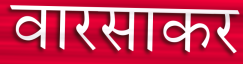
वारसाकर